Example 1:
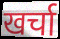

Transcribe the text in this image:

खर्चा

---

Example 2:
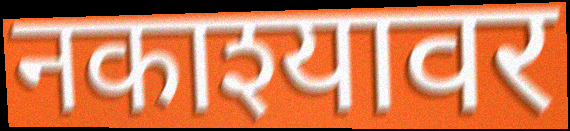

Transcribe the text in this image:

नकाश्यावर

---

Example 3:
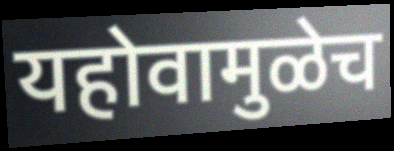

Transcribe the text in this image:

यहोवामुळेच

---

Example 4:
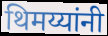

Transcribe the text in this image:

थिमय्यांनी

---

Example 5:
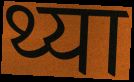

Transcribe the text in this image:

थ्या